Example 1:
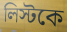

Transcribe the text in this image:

লিস্টকে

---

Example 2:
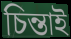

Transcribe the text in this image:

চিন্তাই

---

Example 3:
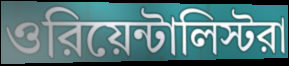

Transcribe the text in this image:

ওরিয়েন্টালিস্টরা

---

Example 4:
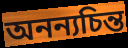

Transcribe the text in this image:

অনন্যচিন্ত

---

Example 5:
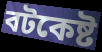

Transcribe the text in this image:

বটকেষ্ট